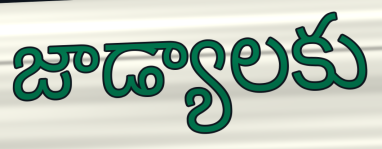
జాడ్యాలకు